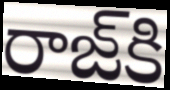
రాజ్‌కి